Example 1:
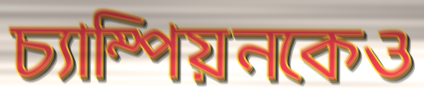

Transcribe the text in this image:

চ্যাম্পিয়নকেও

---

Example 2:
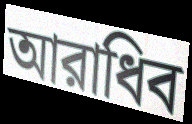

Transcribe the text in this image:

আরাধিব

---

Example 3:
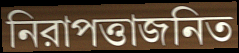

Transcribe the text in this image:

নিরাপত্তাজনিত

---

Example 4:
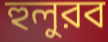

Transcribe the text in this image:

হুলুরব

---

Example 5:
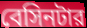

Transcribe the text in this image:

বেসিনটার